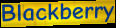
Blackberry